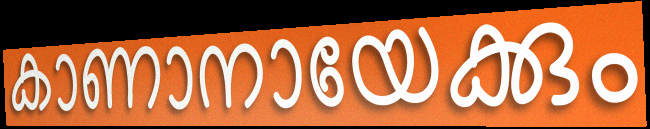
കാണാനായേക്കും